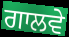
ਗਾਲਵੇ